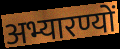
अभ्यारण्यों